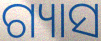
ଗ୍ୟାସ